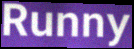
Runny